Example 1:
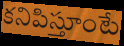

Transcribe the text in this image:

కనిపిస్తూంటే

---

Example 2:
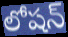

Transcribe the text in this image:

లోషన్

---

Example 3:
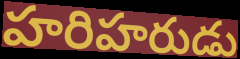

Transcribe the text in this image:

హరిహరుడు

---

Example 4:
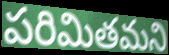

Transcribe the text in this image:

పరిమితమని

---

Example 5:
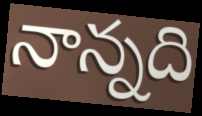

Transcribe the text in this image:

నాన్నది